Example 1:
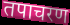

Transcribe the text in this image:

तपाचरण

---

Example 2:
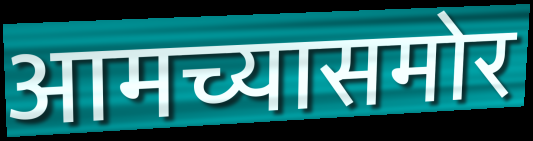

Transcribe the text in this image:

आमच्यासमोर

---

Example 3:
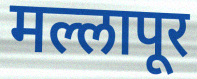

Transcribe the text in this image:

मल्लापूर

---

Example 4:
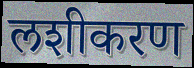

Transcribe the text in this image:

लशीकरण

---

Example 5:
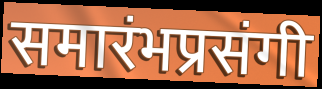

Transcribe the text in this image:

समारंभप्रसंगी